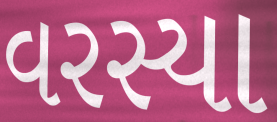
વરસ્યા